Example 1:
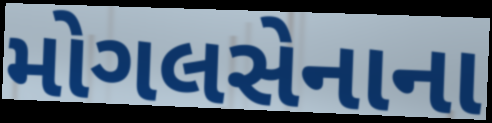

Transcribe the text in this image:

મોગલસેનાના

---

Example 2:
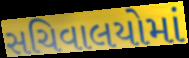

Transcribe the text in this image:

સચિવાલયોમાં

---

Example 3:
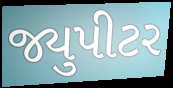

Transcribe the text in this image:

જ્યુપીટર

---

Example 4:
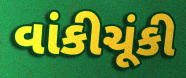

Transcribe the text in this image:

વાંકીચૂંકી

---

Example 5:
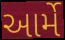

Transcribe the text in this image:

આર્મે